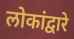
लोकांद्वारे